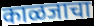
काळजाचा